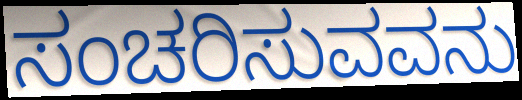
ಸಂಚರಿಸುವವನು